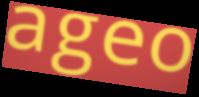
ageo